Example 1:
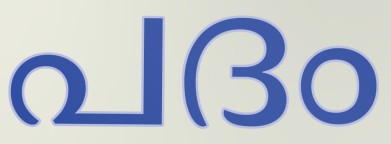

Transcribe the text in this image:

പദം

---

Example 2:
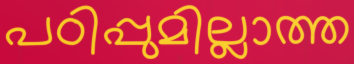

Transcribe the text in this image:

പഠിപ്പുമില്ലാത്ത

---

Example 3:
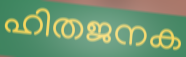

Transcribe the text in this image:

ഹിതജനക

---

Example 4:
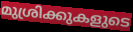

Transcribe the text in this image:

മുശ്രിക്കുകളുടെ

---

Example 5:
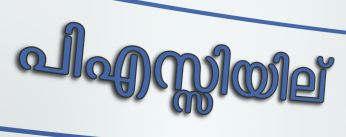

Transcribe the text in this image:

പിഎസ്സിയില്